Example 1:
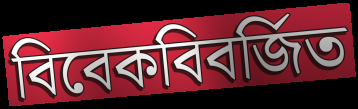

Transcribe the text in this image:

বিবেকবিবর্জিত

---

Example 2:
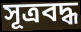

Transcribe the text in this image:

সূত্রবদ্ধ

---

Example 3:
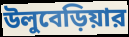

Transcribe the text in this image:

উলুবেড়িয়ার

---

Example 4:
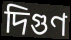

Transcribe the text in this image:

দিগুণ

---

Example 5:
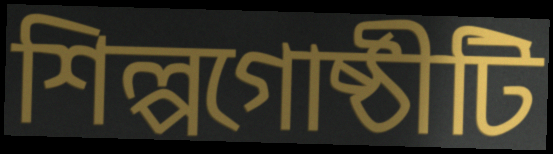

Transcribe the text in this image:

শিল্পগোষ্ঠীটি